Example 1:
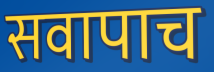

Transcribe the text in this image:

सवापाच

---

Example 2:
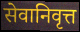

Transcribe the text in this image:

सेवानिवृत्त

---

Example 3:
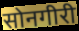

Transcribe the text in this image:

सोनगीरी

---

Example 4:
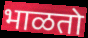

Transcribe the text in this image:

भाळतो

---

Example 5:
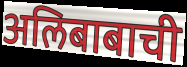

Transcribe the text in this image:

अलिबाबाची